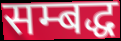
सम्बद्ध